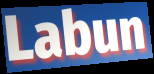
Labun